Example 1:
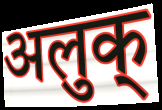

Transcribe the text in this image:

अलुक्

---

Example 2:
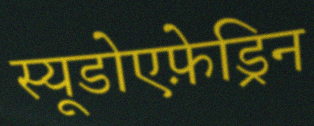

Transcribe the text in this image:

स्यूडोएफ़ेड्रिन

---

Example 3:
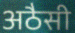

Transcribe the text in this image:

अठैसी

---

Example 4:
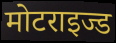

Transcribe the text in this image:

मोटराइज्ड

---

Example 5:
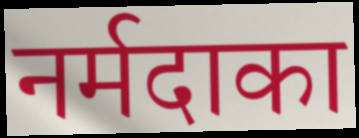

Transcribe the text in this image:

नर्मदाका